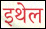
इथेल